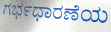
ಗರ್ಭಧಾರಣೆಯ